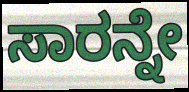
ಸಾರನ್ನೇ